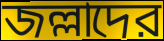
জল্লাদের